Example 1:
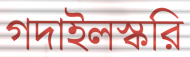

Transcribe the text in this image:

গদাইলস্করি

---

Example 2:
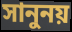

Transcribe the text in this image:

সানুনয়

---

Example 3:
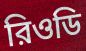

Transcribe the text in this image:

রিওডি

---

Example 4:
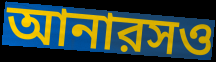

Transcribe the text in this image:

আনারসও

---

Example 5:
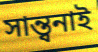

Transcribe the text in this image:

সান্ত্বনাই